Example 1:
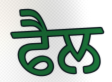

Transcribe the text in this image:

ਫੈਲ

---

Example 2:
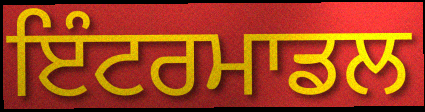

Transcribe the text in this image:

ਇੰਟਰਮਾਡਲ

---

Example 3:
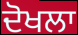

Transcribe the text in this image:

ਦੋਖਲਾ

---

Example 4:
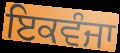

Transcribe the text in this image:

ਇਕਵੰਜਾ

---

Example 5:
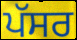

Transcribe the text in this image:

ਪੱਸਰ